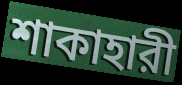
শাকাহারী